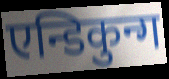
एन्डिकुन्ग